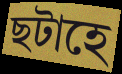
ছটাহে